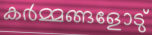
കർമ്മങ്ങളോടു്